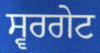
ਸ੍ਵਰਗੇਟ